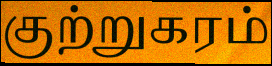
குற்றுகரம்